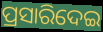
ପ୍ରସାରିଦେଇ